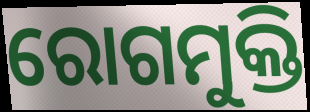
ରୋଗମୁକ୍ତି